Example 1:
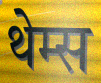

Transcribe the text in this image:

थेम्स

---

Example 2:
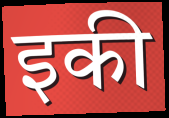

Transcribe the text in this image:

इकी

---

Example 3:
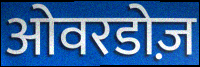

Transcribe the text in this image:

ओवरडोज़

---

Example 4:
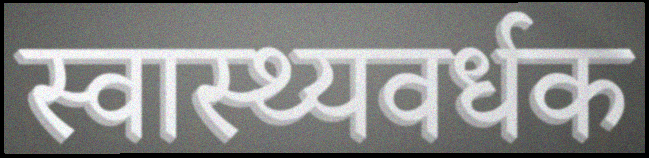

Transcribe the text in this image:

स्वास्थ्यवर्धक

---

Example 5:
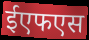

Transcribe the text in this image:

ईएफएस